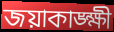
জয়াকাঙ্ক্ষী